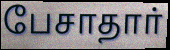
பேசாதார்